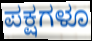
ಪಕ್ಷಗಳೂ